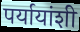
पर्यायांशी